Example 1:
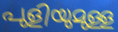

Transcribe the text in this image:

പുളിയുമുള്ള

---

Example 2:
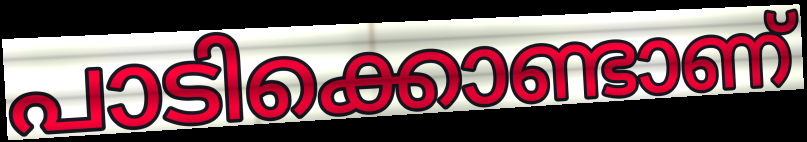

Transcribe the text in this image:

പാടിക്കൊണ്ടാണ്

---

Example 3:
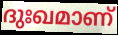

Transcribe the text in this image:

ദുഃഖമാണ്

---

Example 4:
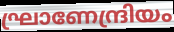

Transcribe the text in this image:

ഘ്രാണേന്ദ്രിയം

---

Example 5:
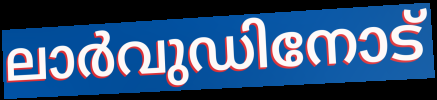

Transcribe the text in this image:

ലാർവുഡിനോട്